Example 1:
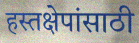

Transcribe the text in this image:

हस्तक्षेपांसाठी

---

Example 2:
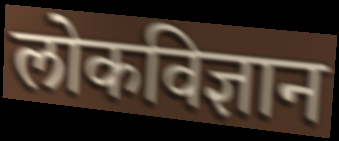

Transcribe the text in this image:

लोकविज्ञान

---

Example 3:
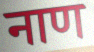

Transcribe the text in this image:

नाण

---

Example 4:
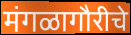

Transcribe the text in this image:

मंगळागौरीचे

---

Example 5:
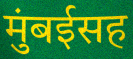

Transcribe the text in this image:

मुंबईसह